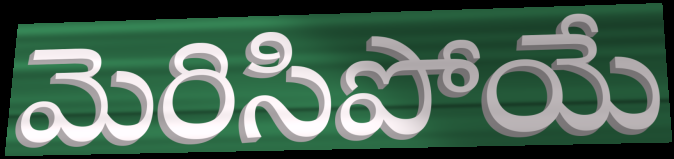
మెరిసిపోయే